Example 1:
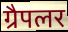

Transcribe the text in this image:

ग्रैपलर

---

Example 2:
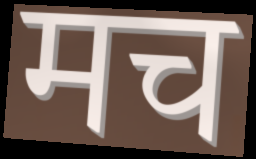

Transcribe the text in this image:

मच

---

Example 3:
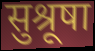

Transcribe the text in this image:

सुश्रूषा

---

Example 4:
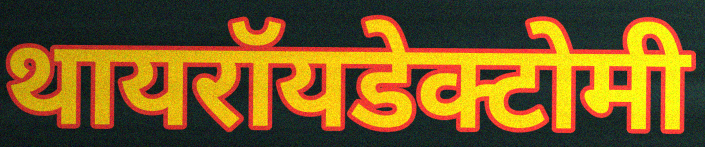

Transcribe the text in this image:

थायरॉयडेक्टोमी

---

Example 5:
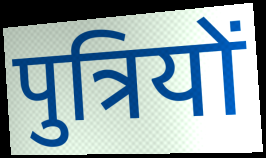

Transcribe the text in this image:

पुत्रियों